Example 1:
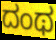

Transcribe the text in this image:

ದಂಥ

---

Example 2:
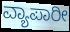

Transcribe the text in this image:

ವ್ಯಾಪಾರೀ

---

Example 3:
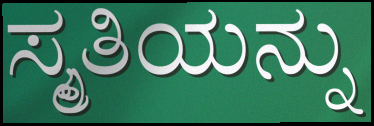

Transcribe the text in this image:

ಸ್ಮೃತಿಯನ್ನು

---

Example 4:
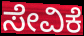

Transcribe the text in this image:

ಸೇವಿಕೆ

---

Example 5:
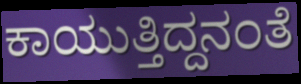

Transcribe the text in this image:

ಕಾಯುತ್ತಿದ್ದನಂತೆ